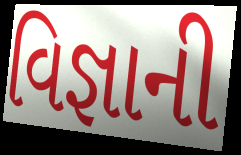
વિજ્ઞાની